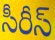
సీరీస్